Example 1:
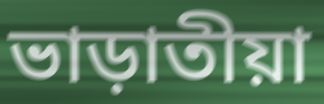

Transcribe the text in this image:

ভাড়াতীয়া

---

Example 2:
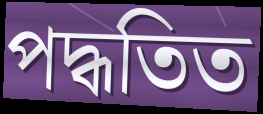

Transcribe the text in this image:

পদ্ধতিত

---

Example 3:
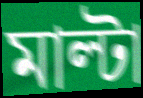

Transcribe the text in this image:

মাল্টা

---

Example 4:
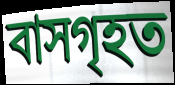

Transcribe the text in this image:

বাসগৃহত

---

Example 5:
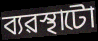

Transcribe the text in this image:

ব্যৱস্থাটো